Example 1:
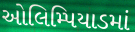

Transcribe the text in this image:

ઓલિમ્પિયાડમાં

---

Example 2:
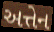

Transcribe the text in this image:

અત્તેન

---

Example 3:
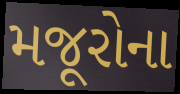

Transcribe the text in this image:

મજૂરોના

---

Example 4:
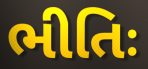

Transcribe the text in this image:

ભીતિઃ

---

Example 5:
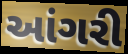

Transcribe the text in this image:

આંગરી